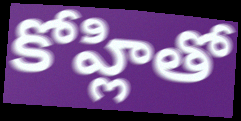
కోహ్లితో